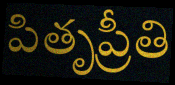
పితృప్రీతి